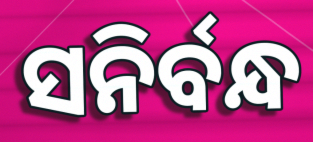
ସନିର୍ବନ୍ଧ